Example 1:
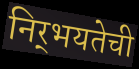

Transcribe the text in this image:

निर्भयतेची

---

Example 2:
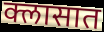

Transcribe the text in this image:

क्लासात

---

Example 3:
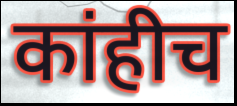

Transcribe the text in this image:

कांहीच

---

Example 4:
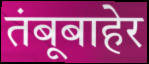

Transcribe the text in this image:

तंबूबाहेर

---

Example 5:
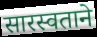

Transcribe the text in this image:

सारस्वताने